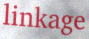
linkage